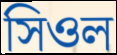
সিওল